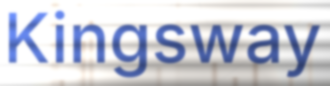
Kingsway